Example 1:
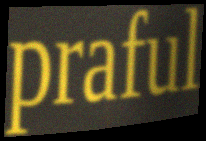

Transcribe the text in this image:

praful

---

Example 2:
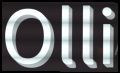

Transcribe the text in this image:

Olli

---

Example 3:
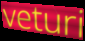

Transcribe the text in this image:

veturi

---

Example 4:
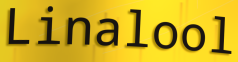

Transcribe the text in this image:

Linalool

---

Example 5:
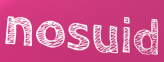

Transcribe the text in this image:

nosuid